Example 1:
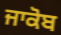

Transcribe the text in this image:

ਜਾਕੋਬ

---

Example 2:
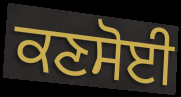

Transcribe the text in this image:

ਕਣਸੋਈ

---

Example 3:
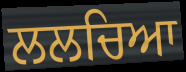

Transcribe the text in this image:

ਲਲਚਿਆ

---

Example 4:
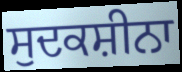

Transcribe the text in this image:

ਸੁਦਕਸ਼ੀਨਾ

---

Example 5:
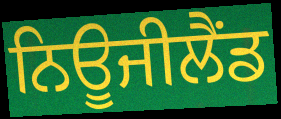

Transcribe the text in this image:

ਨਿਊਜੀਲੈਂਡ